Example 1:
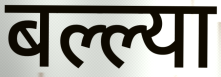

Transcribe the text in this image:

बल्ल्या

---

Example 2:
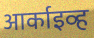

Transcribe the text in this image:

आर्काइव्ह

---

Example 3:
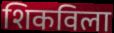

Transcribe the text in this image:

शिकविला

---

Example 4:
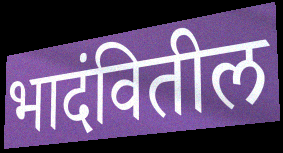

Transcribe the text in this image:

भादंवितील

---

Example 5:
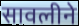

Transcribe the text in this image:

सावलीने